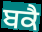
ਬਕੈ